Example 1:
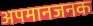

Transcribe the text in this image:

अपमानजनक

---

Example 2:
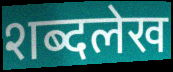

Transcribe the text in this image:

शब्दलेख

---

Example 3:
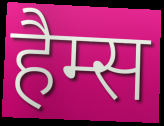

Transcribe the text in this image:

हैम्स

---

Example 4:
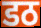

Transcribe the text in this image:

डठ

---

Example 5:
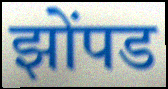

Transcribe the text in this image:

झोंपड